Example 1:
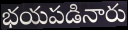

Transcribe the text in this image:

భయపడినారు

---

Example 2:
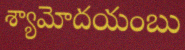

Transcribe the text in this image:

శ్యామోదయంబు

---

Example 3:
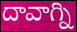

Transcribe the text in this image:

దావాగ్ని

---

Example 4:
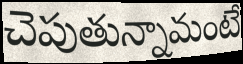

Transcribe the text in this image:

చెపుతున్నామంటే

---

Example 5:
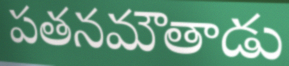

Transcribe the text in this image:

పతనమౌతాడు